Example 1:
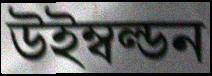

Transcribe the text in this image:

উইম্বল্ডন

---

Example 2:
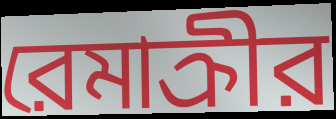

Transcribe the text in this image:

রেমাক্রীর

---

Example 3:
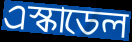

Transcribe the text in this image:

এস্কাডেল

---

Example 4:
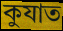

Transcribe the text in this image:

কুযাত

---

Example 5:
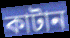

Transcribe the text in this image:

কাটান